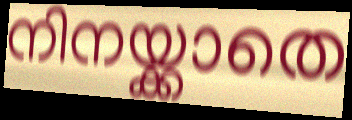
നിനയ്ക്കാതെ